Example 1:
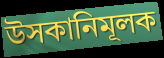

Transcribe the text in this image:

উসকানিমূলক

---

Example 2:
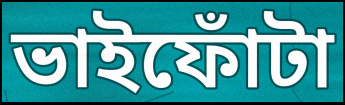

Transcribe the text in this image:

ভাইফোঁটা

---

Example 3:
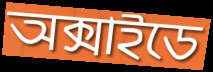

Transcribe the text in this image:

অক্সাইডে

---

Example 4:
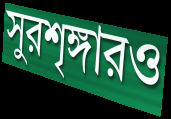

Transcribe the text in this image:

সুরশৃঙ্গারও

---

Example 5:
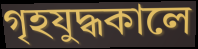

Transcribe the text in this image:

গৃহযুদ্ধকালে